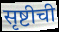
सृष्टीची